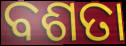
ବଶତା